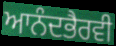
ਆਨੰਦਭੈਰਵੀ